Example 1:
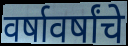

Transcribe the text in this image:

वर्षावर्षांचे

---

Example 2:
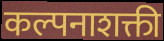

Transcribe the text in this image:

कल्पनाशक्ती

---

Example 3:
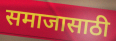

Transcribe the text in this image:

समाजासाठी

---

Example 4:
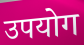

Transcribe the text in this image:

उपयोग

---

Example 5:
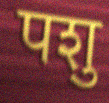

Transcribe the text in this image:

पशु